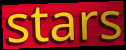
stars